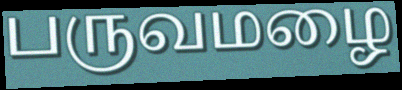
பருவமழை